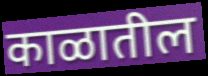
काळातील